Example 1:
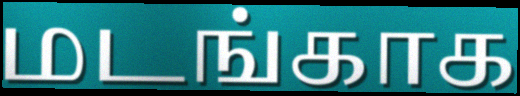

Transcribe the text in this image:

மடங்காக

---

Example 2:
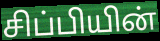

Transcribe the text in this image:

சிப்பியின்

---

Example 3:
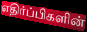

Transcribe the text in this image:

எதிர்ப்பிகளின்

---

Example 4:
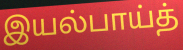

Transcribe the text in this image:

இயல்பாய்த்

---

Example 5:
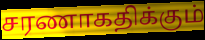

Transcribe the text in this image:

சரணாகதிக்கும்